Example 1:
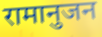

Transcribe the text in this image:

रामानुजन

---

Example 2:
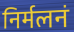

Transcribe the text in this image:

निर्मलनं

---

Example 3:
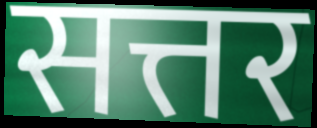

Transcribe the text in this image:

सत्तर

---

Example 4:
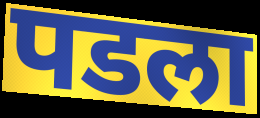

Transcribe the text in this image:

पडला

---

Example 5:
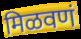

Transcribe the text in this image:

मिळवणं